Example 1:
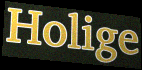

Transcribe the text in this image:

Holige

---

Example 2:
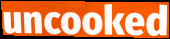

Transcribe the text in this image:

uncooked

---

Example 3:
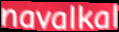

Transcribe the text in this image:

navalkal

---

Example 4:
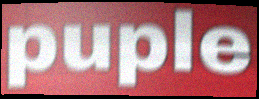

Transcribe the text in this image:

puple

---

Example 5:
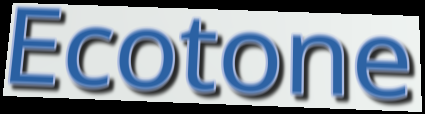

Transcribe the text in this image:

Ecotone